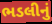
ભડલીનું